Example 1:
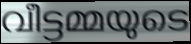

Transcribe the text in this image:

വീട്ടമ്മയുടെ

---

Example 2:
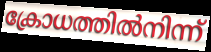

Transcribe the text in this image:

ക്രോധത്തിൽനിന്ന്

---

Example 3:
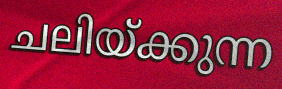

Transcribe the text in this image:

ചലിയ്ക്കുന്ന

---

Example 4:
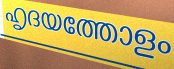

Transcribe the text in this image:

ഹൃദയത്തോളം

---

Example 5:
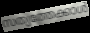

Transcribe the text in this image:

സത്യത്തേക്കാൾ